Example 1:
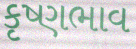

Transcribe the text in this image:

કૃષ્ણભાવ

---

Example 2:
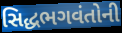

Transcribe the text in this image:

સિદ્ધભગવંતોની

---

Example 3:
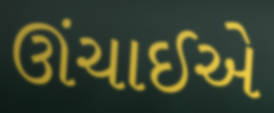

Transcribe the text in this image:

ઊંચાઈએ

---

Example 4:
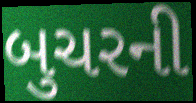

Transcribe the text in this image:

બુચરની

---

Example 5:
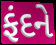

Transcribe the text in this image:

ફંદને